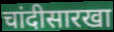
चांदीसारखा